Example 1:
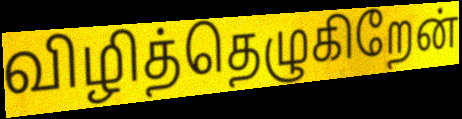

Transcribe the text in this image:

விழித்தெழுகிறேன்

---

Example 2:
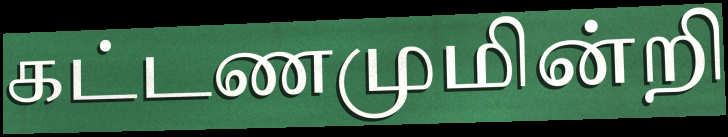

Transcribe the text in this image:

கட்டணமுமின்றி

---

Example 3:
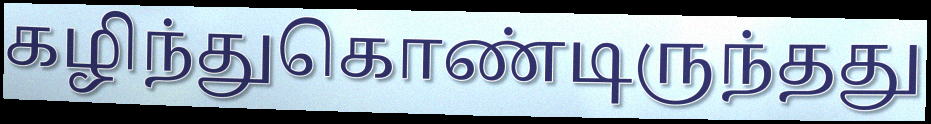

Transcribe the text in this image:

கழிந்துகொண்டிருந்தது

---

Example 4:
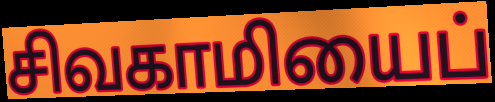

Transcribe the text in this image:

சிவகாமியைப்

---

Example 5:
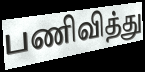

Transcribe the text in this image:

பணிவித்து